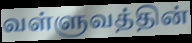
வள்ளுவத்தின்